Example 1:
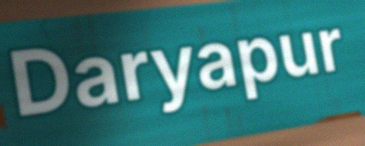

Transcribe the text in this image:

Daryapur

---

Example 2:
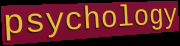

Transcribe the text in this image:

psychology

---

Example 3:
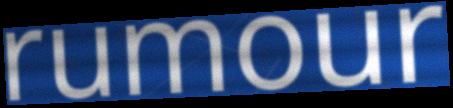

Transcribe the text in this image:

rumour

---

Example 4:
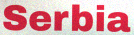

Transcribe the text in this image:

Serbia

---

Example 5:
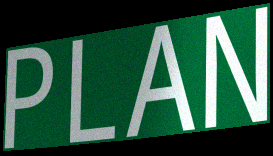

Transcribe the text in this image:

PLAN